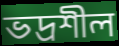
ভদ্রশীল